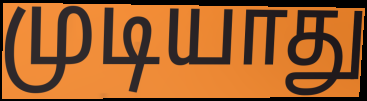
முடியாது